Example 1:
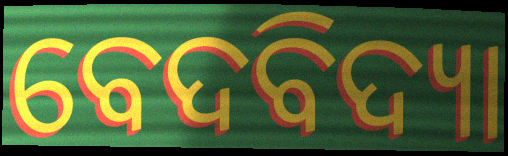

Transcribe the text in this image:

ବେଦବିଦ୍ୟା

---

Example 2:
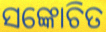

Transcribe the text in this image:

ସଙ୍କୋଚିତ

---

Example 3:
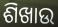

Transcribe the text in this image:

ଶିଖାଉ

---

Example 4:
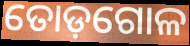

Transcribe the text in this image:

ତୋଡ଼ଗୋଳ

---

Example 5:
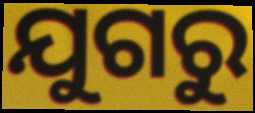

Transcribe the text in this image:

ଯୁଗରୁ